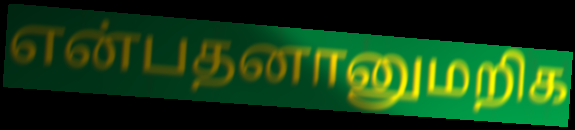
என்பதனானுமறிக